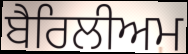
ਬੈਰਿਲੀਅਮ